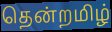
தென்றமிழ்